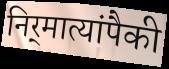
निर्मात्यांपैकी